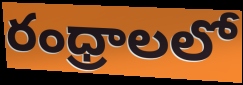
రంధ్రాలలో